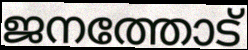
ജനത്തോട്